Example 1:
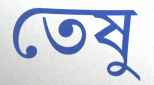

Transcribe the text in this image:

তেষু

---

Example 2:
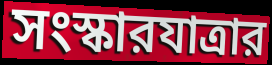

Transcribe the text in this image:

সংস্কারযাত্রার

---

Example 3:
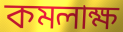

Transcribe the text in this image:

কমলাক্ষ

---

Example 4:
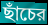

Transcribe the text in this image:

ছাঁচের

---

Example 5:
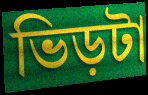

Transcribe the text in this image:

ভিড়টা